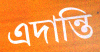
এদান্তি